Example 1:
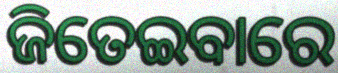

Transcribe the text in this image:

ଜିତେଇବାରେ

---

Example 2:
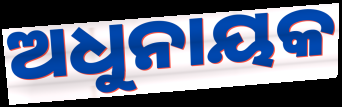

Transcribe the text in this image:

ଅଧୁନାୟକ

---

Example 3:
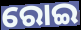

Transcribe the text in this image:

ରୋଇ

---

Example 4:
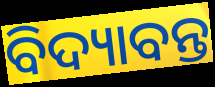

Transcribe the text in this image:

ବିଦ୍ୟାବନ୍ତ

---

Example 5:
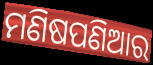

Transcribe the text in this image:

ମଣିଷପଣିଆର